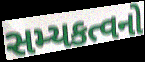
સમ્યકત્વનો